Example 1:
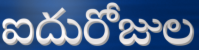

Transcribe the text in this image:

ఐదురోజుల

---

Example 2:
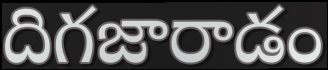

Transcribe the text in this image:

దిగజారాడం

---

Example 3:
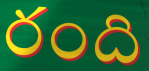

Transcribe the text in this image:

రంది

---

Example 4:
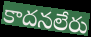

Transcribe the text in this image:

కాదనలేరు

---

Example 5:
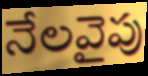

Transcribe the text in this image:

నేలవైపు